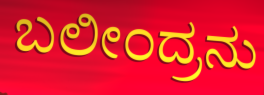
ಬಲೀಂದ್ರನು